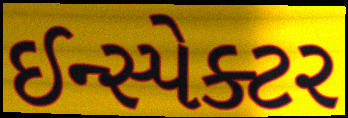
ઈન્સ્પેક્ટર